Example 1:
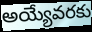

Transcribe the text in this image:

అయ్యేవరకు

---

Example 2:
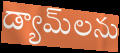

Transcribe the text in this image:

డ్యామ్‌లను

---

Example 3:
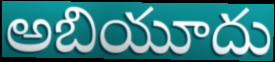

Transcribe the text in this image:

అబియూదు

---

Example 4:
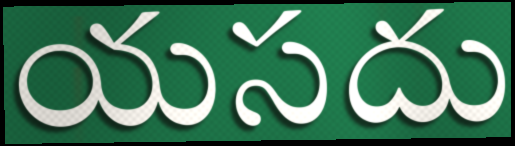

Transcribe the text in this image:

యసదు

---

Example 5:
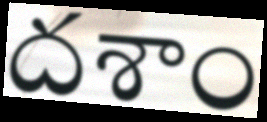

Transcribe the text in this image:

దశాం